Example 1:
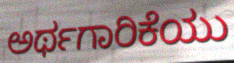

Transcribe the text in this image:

ಅರ್ಥಗಾರಿಕೆಯು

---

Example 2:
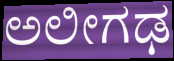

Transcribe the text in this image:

ಅಲೀಗಢ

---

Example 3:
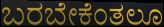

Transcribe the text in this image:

ಬರಬೇಕೆಂತಲೂ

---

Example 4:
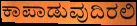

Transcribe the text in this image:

ಕಾಪಾಡುವುದಿರಲಿ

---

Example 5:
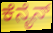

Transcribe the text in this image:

ಕೆನೈನ್